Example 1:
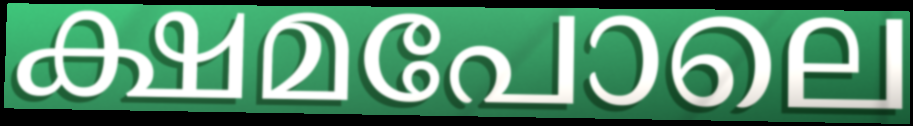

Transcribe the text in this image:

ക്ഷമപോലെ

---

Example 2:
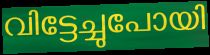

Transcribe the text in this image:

വിട്ടേച്ചുപോയി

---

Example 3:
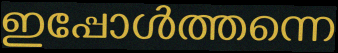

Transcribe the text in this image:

ഇപ്പോൾത്തന്നെ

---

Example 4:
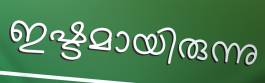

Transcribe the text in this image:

ഇഷ്ടമായിരുന്നു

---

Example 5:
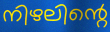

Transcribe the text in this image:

നിഴലിന്റെ